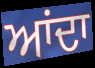
ਆਂਦਾ